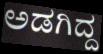
ಅಡಗಿದ್ದ